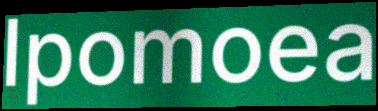
Ipomoea